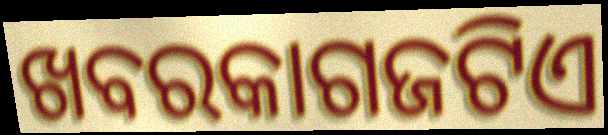
ଖବରକାଗଜଟିଏ